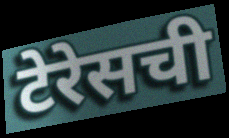
टेरेसची